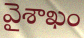
వైశాఖం